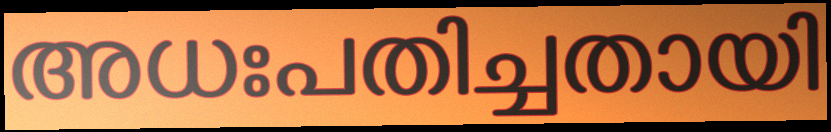
അധഃപതിച്ചതായി